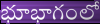
భూభాగంలో